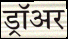
ड्रॉअर